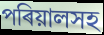
পৰিয়ালসহ